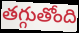
తగ్గుతోంది